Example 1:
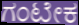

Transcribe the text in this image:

ಗಂಟೇಕ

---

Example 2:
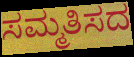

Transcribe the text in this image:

ಸಮ್ಮತಿಸದ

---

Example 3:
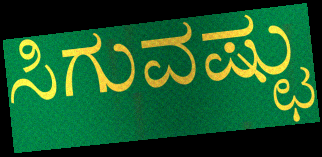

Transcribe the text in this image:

ಸಿಗುವಷ್ಟು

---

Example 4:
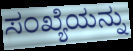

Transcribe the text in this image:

ಸಂಖ್ಯೆಯನ್ನು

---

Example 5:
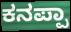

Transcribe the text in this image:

ಕನಪ್ಪಾ